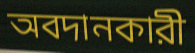
অবদানকারী